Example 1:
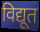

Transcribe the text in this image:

विद्यूत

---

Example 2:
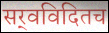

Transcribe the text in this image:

सर्वविदितच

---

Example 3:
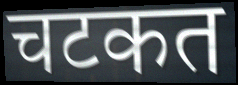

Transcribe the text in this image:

चटकत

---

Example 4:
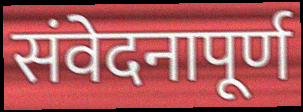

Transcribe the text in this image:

संवेदनापूर्ण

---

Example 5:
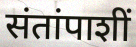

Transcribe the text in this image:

संतांपाशीं